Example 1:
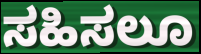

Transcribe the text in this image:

ಸಹಿಸಲೂ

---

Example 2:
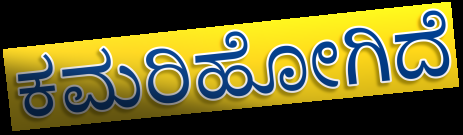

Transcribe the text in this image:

ಕಮರಿಹೋಗಿದೆ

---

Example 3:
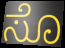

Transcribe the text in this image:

ಸೊ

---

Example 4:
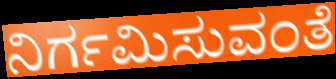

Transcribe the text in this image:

ನಿರ್ಗಮಿಸುವಂತೆ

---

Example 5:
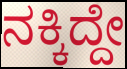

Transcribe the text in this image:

ನಕ್ಕಿದ್ದೇ